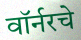
वॉर्नरचे